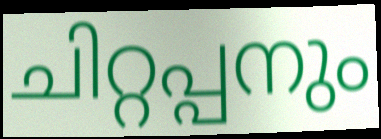
ചിറ്റപ്പനും